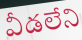
వీడలేని